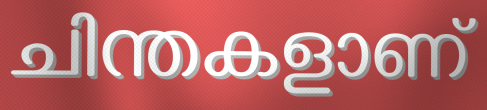
ചിന്തകളാണ്